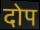
दोप